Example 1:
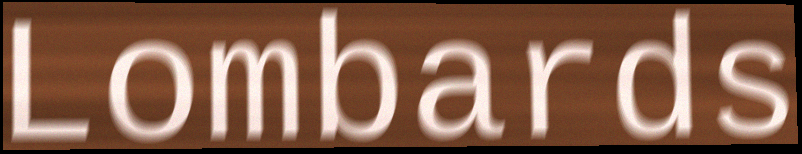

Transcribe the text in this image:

Lombards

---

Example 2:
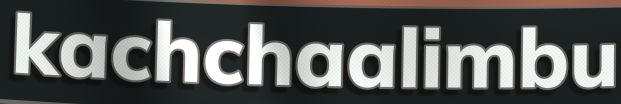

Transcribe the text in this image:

kachchaalimbu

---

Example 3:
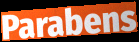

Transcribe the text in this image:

Parabens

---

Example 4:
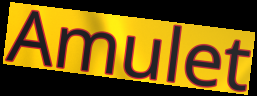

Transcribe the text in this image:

Amulet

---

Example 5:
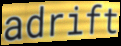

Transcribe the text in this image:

adrift